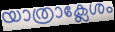
യാത്രാക്ലേശം